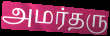
அமர்தரு